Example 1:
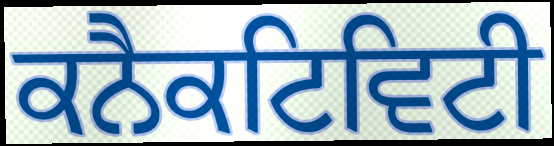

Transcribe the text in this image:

ਕਨੈਕਟਿਵਿਟੀ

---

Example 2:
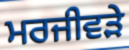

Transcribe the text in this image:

ਮਰਜੀਵੜੇ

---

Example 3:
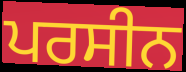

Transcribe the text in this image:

ਪਰਸੀਨ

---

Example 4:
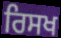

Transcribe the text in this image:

ਰਿਸਖ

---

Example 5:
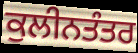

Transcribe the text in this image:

ਕੁਲੀਨਤੰਤਰ